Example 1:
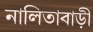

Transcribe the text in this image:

নালিতাবাড়ী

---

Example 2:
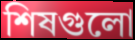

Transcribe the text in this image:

শিষগুলো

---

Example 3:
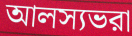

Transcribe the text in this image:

আলস্যভরা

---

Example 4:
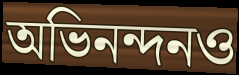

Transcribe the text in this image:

অভিনন্দনও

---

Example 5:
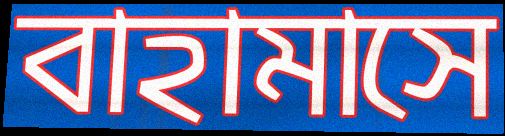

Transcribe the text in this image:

বাহামাসে